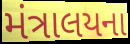
મંત્રાલયના